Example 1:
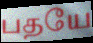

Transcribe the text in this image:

பதயே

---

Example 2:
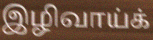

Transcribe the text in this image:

இழிவாய்க்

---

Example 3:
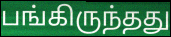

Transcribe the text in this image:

பங்கிருந்தது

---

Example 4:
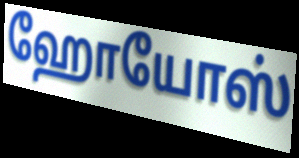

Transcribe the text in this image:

ஹோயோஸ்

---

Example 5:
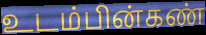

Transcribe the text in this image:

உடம்பின்கண்